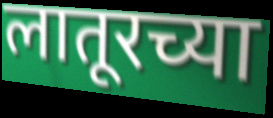
लातूरच्या